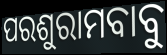
ପରଶୁରାମବାବୁ